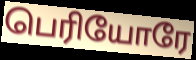
பெரியோரே